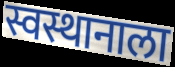
स्वस्थानाला